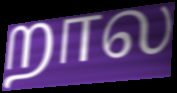
றால